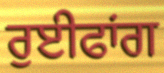
ਰੁਈਫਾਂਗ